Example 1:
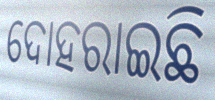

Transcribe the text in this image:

ଦୋହରାଇଛି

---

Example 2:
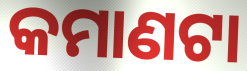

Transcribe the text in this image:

କମାଣଟା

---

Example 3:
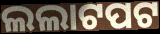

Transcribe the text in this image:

ଲଲାଟପଟ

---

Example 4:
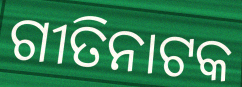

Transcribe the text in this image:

ଗୀତିନାଟକ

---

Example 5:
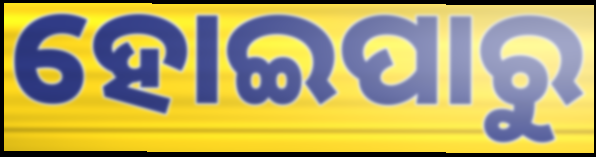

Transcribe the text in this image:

ହୋଇପାରୁ